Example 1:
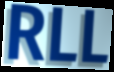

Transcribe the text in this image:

RLL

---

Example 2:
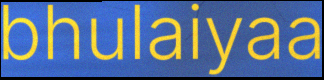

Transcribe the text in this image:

bhulaiyaa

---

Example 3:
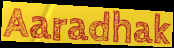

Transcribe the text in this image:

Aaradhak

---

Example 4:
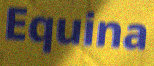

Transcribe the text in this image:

Equina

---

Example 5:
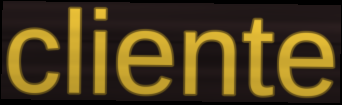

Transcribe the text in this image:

cliente